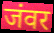
जंवर